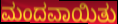
ಮಂದವಾಯಿತು